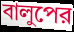
বালুপের